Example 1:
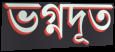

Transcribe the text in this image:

ভগ্নদূত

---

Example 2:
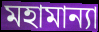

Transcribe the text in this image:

মহামান্যা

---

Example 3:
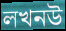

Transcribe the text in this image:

লখনউ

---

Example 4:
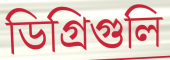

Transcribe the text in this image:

ডিগ্রিগুলি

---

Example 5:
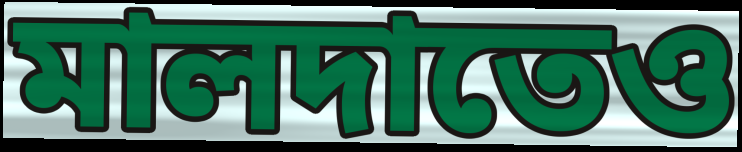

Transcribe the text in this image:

মালদাতেও